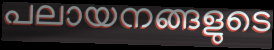
പലായനങ്ങളുടെ